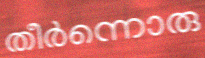
തീർന്നൊരു